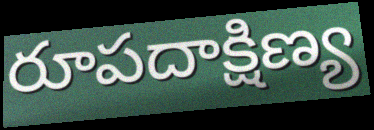
రూపదాక్షిణ్య